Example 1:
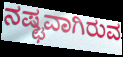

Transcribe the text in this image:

ನಷ್ಟವಾಗಿರುವ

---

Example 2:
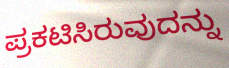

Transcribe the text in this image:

ಪ್ರಕಟಿಸಿರುವುದನ್ನು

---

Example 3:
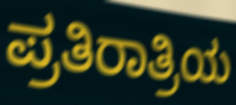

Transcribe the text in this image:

ಪ್ರತಿರಾತ್ರಿಯ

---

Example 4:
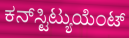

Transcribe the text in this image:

ಕನ್‌ಸ್ಟಿಟ್ಯುಯೆಂಟ್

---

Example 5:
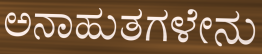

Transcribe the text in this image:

ಅನಾಹುತಗಳೇನು